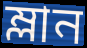
ম্লান